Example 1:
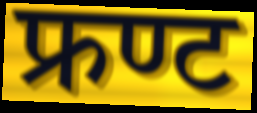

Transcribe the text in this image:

फ्रण्ट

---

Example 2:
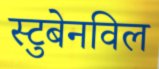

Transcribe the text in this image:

स्टुबेनविल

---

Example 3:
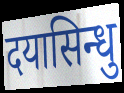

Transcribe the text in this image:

दयासिन्धु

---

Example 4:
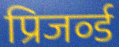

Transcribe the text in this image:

प्रिजर्व्ड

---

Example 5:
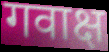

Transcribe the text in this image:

गवाक्ष